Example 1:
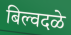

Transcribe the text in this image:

बिल्वदळे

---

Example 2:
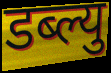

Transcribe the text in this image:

डब्ल्यु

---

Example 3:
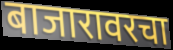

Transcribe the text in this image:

बाजारावरचा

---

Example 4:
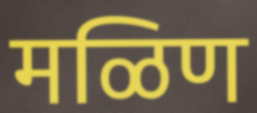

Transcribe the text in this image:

मळिण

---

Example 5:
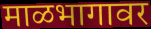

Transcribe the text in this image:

माळभागावर